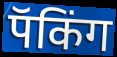
पॅकिंग